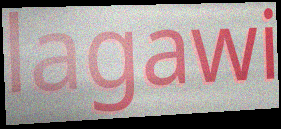
lagawi